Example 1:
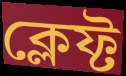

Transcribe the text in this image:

ক্লেফ্ট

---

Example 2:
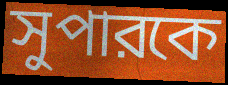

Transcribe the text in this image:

সুপারকে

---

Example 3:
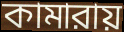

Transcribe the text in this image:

কামারায়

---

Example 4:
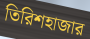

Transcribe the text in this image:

তিরিশহাজার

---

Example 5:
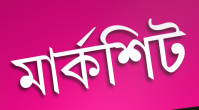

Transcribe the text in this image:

মার্কশিট